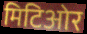
मिटिओर